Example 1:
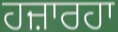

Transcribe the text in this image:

ਹਜ਼ਾਰਹਾ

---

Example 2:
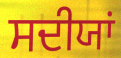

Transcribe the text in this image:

ਸਦੀਯਾਂ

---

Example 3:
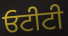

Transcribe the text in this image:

ਓਟੀਟੀ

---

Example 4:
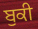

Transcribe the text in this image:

ਬੁਕੀ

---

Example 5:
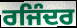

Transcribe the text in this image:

ਰਜਿੰਦਰ